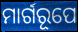
ମାର୍ଗରୂପେ